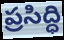
ప్రసిద్ధి